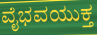
ವೈಭವಯುಕ್ತ